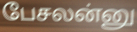
பேசலன்னு